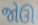
જોઊ